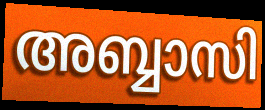
അബ്ബാസി